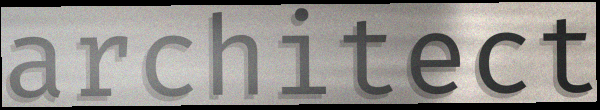
architect